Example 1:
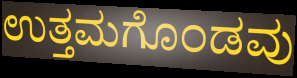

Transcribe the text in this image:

ಉತ್ತಮಗೊಂಡವು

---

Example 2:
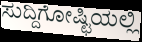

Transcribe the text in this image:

ಸುದ್ದಿಗೋಷ್ಟಿಯಲ್ಲಿ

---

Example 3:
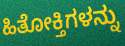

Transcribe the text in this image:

ಹಿತೋಕ್ತಿಗಳನ್ನು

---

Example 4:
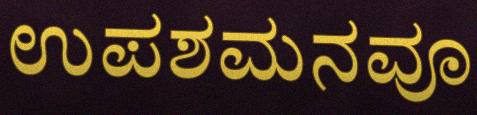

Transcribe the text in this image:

ಉಪಶಮನವೂ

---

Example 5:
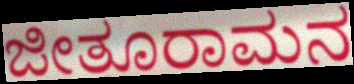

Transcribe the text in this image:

ಜೀತೂರಾಮನ